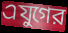
এযুগের